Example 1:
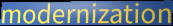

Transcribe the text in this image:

modernization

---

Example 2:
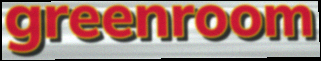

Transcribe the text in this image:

greenroom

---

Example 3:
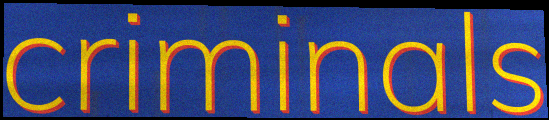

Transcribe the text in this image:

criminals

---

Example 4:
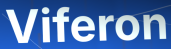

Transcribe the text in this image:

Viferon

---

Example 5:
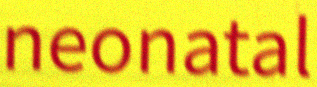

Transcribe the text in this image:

neonatal